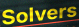
Solvers